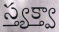
స్త్యక్త్వా